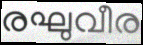
രഘുവീര